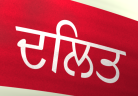
ਦਲਿਤ